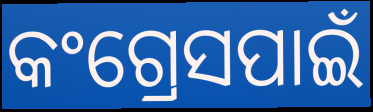
କଂଗ୍ରେସପାଇଁ